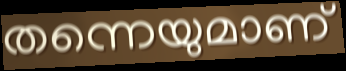
തന്നെയുമാണ്